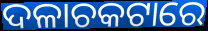
ଦଳାଚକଟାରେ